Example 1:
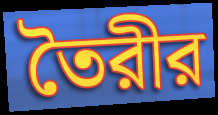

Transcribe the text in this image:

তৈরীর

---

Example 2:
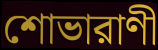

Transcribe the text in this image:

শোভারাণী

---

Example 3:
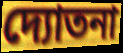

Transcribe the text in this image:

দ্যোতনা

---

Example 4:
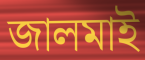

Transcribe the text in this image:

জালমাই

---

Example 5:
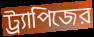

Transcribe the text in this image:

ট্র্যাপিজের